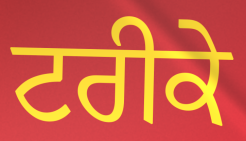
ਟਰੀਕੇ